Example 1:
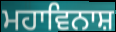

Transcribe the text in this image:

ਮਹਾਵਿਨਾਸ਼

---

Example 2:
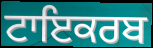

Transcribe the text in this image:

ਟਾਇਕਰਬ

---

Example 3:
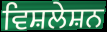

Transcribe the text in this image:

ਵਿਸ਼ਲੇਸ਼ਨ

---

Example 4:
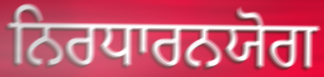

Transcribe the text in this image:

ਨਿਰਧਾਰਨਯੋਗ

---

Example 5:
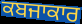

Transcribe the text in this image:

ਕਬਜਾਕਾਰ